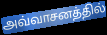
அவ்வாசனத்தில்